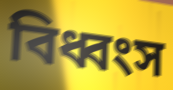
বিধ্বংস